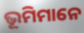
ଭୂମିମାନେ